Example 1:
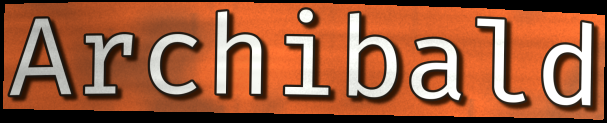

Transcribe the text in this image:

Archibald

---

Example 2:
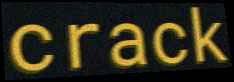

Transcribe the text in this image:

crack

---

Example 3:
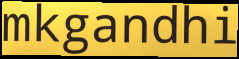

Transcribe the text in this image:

mkgandhi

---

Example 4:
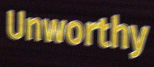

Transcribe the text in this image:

Unworthy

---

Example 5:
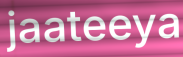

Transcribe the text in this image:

jaateeya